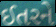
ઈતરને